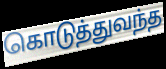
கொடுத்துவந்த